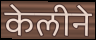
केलीने